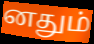
னதும்